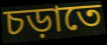
চড়াতে